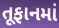
તૂફાનમાં